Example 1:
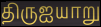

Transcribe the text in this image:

திருஐயாறு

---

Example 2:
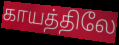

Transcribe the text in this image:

காயத்திலே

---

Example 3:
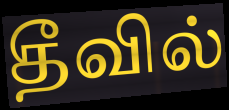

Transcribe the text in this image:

தீவில்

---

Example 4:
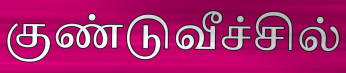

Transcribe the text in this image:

குண்டுவீச்சில்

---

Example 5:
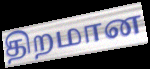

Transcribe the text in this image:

திறமான